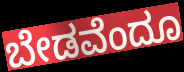
ಬೇಡವೆಂದೂ